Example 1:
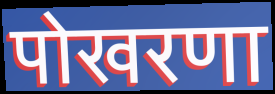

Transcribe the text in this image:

पोखरणा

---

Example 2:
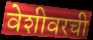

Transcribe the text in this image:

वेशीवरची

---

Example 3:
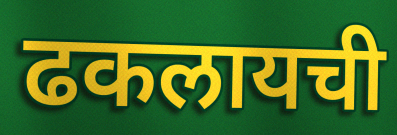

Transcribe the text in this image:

ढकलायची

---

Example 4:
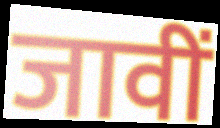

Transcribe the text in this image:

जावीं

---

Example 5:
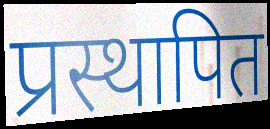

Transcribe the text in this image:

प्रस्थापित